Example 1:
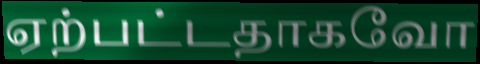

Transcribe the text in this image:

ஏற்பட்டதாகவோ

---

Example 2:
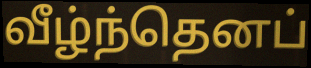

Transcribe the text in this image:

வீழ்ந்தெனப்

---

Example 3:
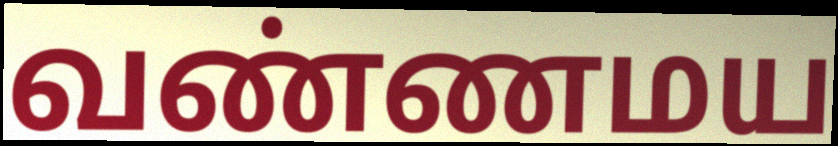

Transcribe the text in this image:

வண்ணமய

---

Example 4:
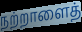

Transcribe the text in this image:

நற்றாளைத்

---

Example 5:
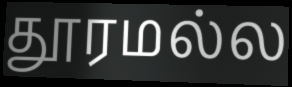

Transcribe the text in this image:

தூரமல்ல